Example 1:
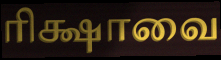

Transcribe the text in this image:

ரிக்ஷாவை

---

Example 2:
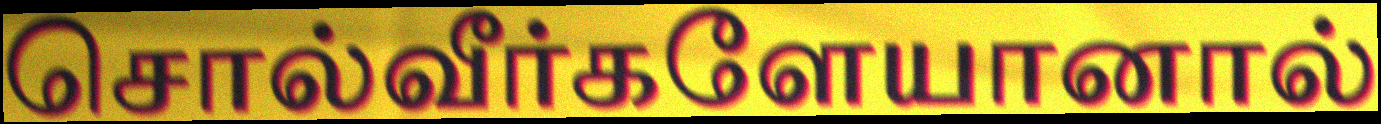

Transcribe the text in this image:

சொல்வீர்களேயானால்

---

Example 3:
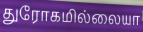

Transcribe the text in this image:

துரோகமில்லையா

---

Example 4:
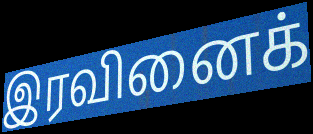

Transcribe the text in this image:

இரவினைக்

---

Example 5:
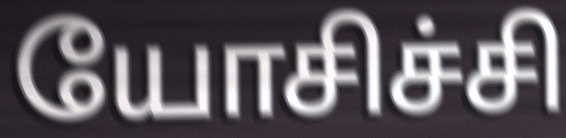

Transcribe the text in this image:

யோசிச்சி